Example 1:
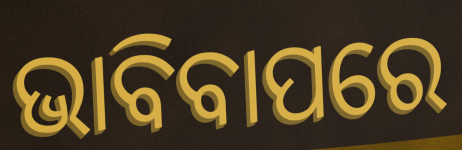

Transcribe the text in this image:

ଭାବିବାପରେ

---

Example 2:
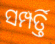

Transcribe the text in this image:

ସମ୍ପର୍ତ୍ତି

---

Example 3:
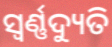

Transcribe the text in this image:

ସ୍ୱର୍ଣ୍ଣଦ୍ୟୁତି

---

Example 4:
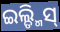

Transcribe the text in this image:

ଇଲ୍ଡ୍ମିସ୍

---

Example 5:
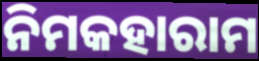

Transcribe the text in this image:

ନିମକହାରାମ